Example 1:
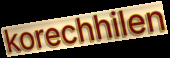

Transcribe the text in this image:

korechhilen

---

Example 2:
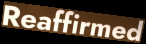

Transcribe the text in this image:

Reaffirmed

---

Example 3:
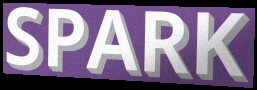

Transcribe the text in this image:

SPARK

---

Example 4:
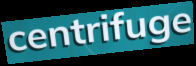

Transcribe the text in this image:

centrifuge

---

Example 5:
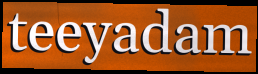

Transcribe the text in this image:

teeyadam